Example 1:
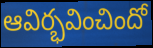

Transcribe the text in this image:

ఆవిర్భవించిందో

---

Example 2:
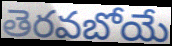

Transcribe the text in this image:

తెరవబోయే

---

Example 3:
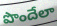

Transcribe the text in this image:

పొందేలా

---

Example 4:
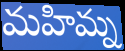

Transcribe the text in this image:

మహిమ్న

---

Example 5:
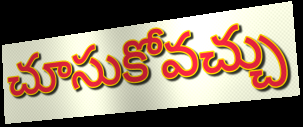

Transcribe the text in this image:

చూసుకోవచ్చు